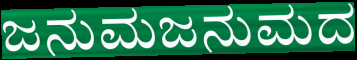
ಜನುಮಜನುಮದ